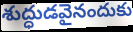
శుద్ధుడవైనందుకు